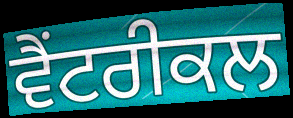
ਵੈਂਟਰੀਕਲ